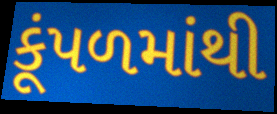
કૂંપળમાંથી